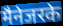
मैनेजरके